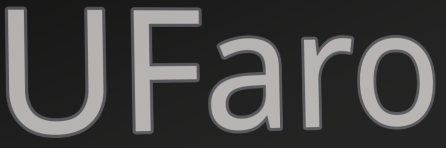
UFaro